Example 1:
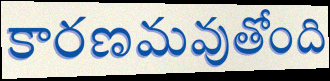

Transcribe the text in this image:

కారణమవుతోంది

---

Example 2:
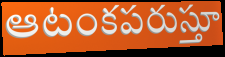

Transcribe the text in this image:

ఆటంకపరుస్తూ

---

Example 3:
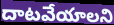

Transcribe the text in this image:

దాటవేయాలని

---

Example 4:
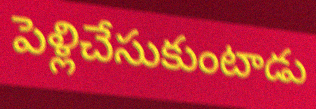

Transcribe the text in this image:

పెళ్లిచేసుకుంటాడు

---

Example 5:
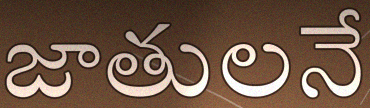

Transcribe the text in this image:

జాతులనే